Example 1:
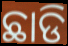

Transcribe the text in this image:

ଛାଡି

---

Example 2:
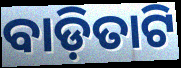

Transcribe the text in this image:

ବାଡ଼ିତାଟି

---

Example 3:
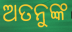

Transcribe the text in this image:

ଅତନୁଙ୍କ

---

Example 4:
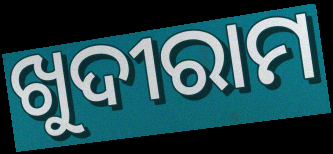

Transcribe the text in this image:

ଖୁଦୀରାମ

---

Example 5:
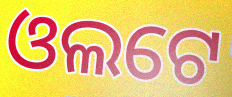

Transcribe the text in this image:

ଓଲଟେ